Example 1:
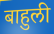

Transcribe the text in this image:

बाहुली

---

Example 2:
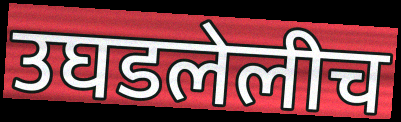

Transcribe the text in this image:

उघडलेलीच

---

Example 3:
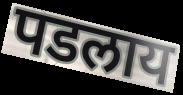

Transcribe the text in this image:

पडलाय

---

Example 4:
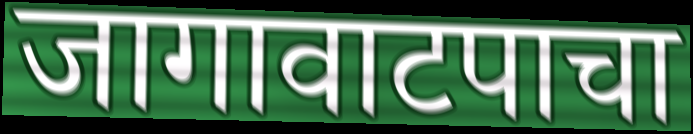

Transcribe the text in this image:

जागावाटपाचा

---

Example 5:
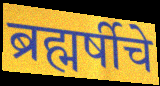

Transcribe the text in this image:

ब्रह्मर्षीचे